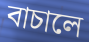
বাচালে